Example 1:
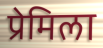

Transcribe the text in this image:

प्रेमिला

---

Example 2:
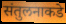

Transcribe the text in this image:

संतुलनाकडे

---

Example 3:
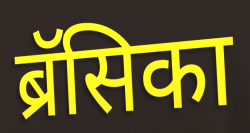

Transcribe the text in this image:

ब्रॅसिका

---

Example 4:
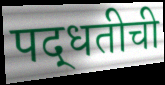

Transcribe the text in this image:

पद्धतीची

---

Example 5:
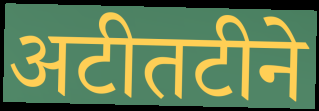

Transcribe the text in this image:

अटीतटीने